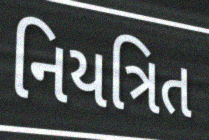
નિયત્રિત